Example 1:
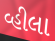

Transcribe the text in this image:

વ્હીલા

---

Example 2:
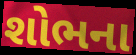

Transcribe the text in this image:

શોભના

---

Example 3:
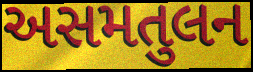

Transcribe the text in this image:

અસમતુલન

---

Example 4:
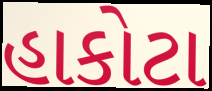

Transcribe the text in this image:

હાકોટા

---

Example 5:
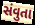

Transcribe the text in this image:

સંવુતા